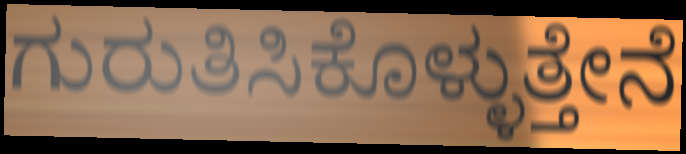
ಗುರುತಿಸಿಕೊಳ್ಳುತ್ತೇನೆ